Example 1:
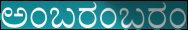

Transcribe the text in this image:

ಅಂಬರಂಬರಂ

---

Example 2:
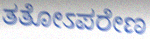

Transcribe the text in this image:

ತತೋಽಪರೇಣ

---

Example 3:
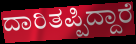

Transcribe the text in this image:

ದಾರಿತಪ್ಪಿದ್ದಾರೆ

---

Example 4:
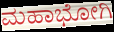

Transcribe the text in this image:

ಮಹಾಭೋಗಿ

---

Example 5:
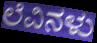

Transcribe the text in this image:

ಲೆವಿನಳು